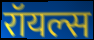
रॉयल्‍स